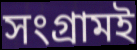
সংগ্রামই